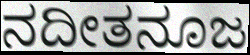
ನದೀತನೂಜ